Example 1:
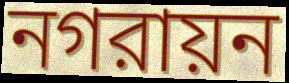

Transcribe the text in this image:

নগরায়ন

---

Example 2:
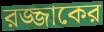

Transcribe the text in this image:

রজ্জাকের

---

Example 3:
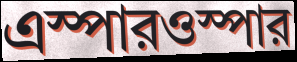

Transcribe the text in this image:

এস্পারওস্পার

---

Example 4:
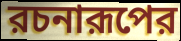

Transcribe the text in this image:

রচনারূপের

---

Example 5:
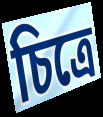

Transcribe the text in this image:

চিত্রে